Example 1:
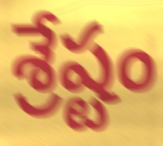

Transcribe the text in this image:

శ్రేష్టం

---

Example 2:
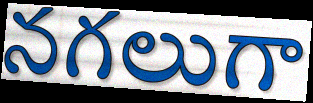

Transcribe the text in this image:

నగలుగా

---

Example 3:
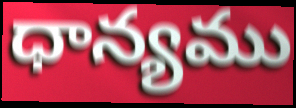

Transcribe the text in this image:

ధాన్యము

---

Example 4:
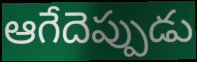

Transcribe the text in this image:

ఆగేదెప్పుడు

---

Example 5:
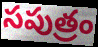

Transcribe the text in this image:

సపుత్రం